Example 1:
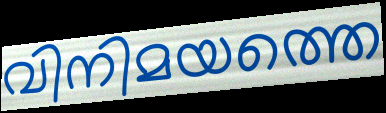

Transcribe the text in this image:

വിനിമയത്തെ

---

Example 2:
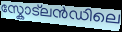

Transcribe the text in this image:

സ്കോട്ലൻഡിലെ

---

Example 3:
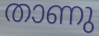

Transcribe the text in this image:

താണു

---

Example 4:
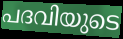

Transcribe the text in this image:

പദവിയുടെ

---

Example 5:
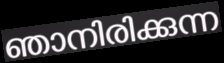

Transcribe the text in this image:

ഞാനിരിക്കുന്ന